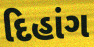
દિહાંગ